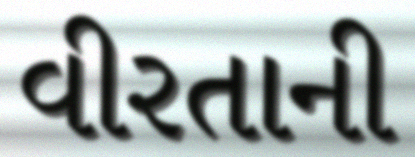
વીરતાની